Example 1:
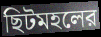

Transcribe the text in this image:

ছিটমহলের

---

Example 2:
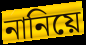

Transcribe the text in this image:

নানিয়ে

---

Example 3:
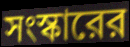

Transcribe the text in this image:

সংস্কারের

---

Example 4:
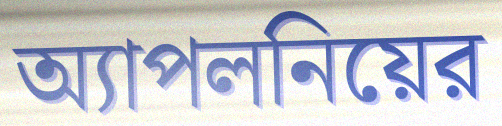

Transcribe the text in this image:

অ্যাপলনিয়ের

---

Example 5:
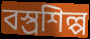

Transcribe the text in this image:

বস্ত্রশিল্প